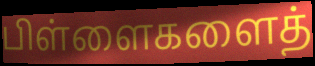
பிள்ளைகளைத்